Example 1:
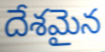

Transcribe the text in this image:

దేశమైన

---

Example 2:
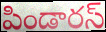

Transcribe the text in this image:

పిండారస్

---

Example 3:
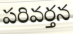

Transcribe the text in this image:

పరివర్తన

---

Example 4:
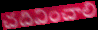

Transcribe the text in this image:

చదివించాలి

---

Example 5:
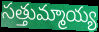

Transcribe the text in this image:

సత్తుమ్మాయ్య